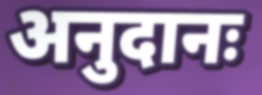
अनुदानः